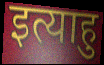
इत्याहु